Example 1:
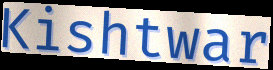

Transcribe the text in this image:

Kishtwar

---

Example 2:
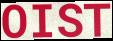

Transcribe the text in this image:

OIST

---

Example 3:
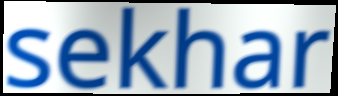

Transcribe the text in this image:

sekhar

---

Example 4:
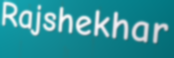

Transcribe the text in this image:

Rajshekhar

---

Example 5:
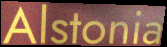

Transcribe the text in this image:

Alstonia